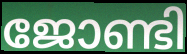
ജോണ്ടി